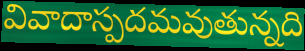
వివాదాస్పదమవుతున్నది